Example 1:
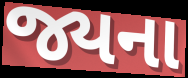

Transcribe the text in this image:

જ્યના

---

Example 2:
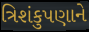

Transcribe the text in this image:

ત્રિશંકુપણાને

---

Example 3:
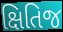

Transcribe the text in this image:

ક્ષિતિજ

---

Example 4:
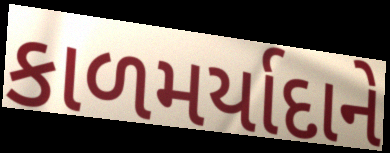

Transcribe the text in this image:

કાળમર્યાદાને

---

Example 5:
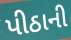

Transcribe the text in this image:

પીઠાની